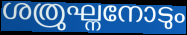
ശത്രുഘ്നനോടും